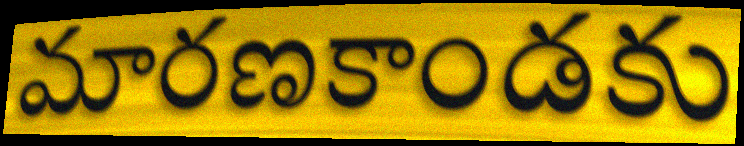
మారణకాండకు